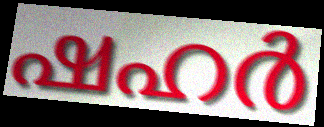
ഷഹർ